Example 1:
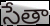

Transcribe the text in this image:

సేతా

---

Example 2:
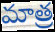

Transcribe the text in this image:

మాత్ర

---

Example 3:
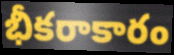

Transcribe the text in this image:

భీకరాకారం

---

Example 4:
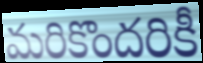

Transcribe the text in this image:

మరికొందరికీ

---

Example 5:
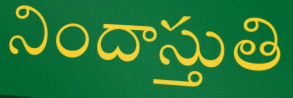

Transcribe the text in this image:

నిందాస్తుతి